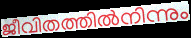
ജീവിതത്തിൽനിന്നും